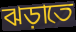
ঝড়াতে